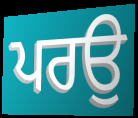
ਪਰਉ